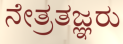
ನೇತ್ರತಜ್ಞರು